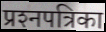
प्रश्नपत्रिका